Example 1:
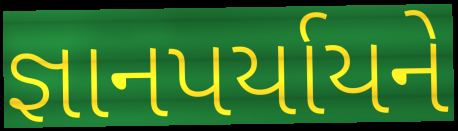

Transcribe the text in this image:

જ્ઞાનપર્યાયને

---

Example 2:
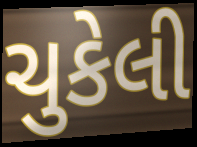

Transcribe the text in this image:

ચુકેલી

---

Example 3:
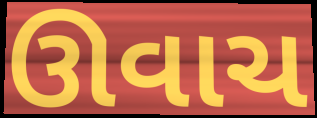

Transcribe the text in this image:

ઊવાચ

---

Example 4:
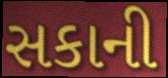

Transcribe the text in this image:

સકાની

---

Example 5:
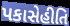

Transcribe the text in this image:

પકાસેહીતિ